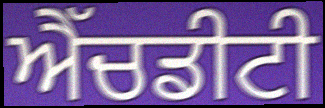
ਐੱਚਡੀਟੀ